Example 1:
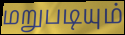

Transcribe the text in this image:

மறுபடியும்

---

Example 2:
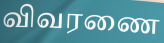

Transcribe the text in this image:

விவரணை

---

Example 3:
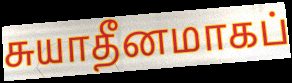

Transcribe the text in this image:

சுயாதீனமாகப்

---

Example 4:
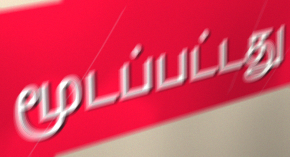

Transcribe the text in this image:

மூடப்பட்டது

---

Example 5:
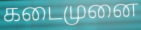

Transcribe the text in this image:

கடைமுனை